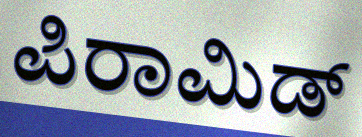
ಪಿರಾಮಿಡ್